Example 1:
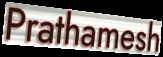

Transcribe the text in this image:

Prathamesh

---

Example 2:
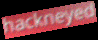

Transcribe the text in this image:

hackneyed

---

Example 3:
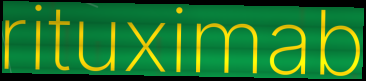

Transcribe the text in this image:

rituximab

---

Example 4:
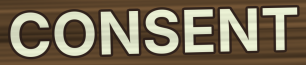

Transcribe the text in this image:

CONSENT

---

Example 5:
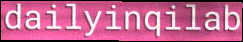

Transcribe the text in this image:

dailyinqilab